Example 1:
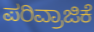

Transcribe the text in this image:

ಪರಿವ್ರಾಜಿಕೆ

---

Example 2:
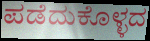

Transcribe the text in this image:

ಪಡೆದುಕೊಳ್ಳದ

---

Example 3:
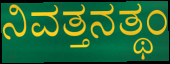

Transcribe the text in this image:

ನಿವತ್ತನತ್ಥಂ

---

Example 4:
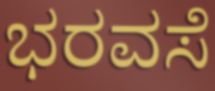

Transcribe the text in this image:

ಭರವಸೆ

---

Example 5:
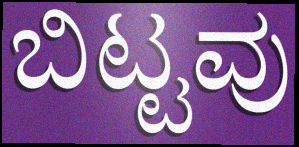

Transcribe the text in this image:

ಬಿಟ್ಟವು